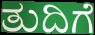
ತುದಿಗೆ